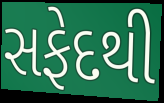
સફેદથી